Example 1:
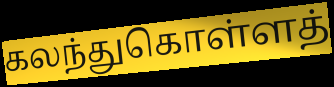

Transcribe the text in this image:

கலந்துகொள்ளத்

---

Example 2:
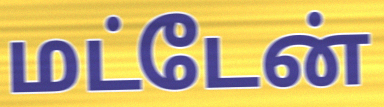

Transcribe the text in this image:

மட்டேன்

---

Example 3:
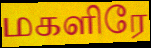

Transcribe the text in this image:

மகளிரே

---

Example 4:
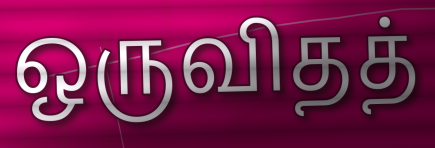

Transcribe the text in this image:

ஒருவிதத்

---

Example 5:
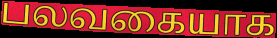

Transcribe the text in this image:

பலவகையாக